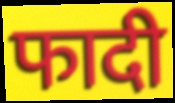
फादी